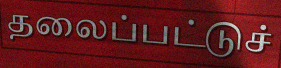
தலைப்பட்டுச்